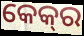
କେକ୍‌ର